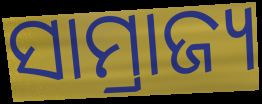
ସାମ୍ରାଜ୍ଯ